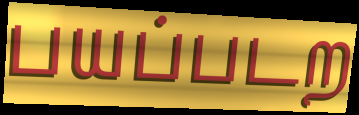
பயப்படற